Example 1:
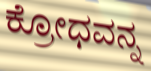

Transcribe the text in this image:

ಕ್ರೋಧವನ್ನ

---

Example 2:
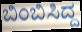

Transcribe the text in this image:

ಬಿಂಬಿಸಿದ್ದ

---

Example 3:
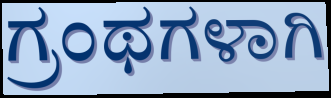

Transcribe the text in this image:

ಗ್ರಂಥಗಳಾಗಿ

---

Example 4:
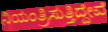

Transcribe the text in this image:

ನಿಯಂತ್ರಿಸುತ್ತಿದ್ದೇವೆ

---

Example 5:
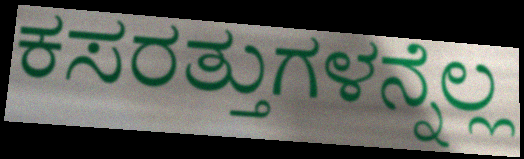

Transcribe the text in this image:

ಕಸರತ್ತುಗಳನ್ನೆಲ್ಲ